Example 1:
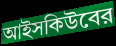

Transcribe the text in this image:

আইসকিউবের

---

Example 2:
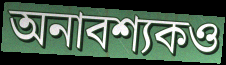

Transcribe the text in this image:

অনাবশ্যকও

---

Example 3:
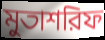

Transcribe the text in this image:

মুতাশরিফ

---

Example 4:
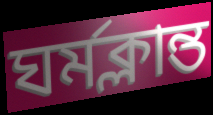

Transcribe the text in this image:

ঘর্মক্লান্ত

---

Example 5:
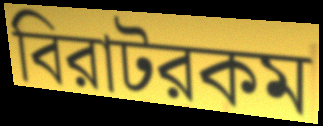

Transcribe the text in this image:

বিরাটরকম